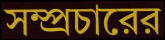
সম্প্রচারের